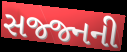
સજ્જ્નની